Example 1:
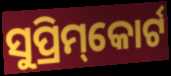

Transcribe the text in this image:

ସୁପ୍ରିମ୍‌କୋର୍ଟ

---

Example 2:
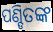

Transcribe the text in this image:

ପଣ୍ଡିତଙ୍କ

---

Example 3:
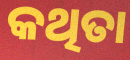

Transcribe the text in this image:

କଥିତା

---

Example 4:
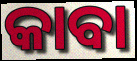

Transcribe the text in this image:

କାବା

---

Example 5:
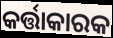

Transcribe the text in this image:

କର୍ତ୍ତାକାରକ